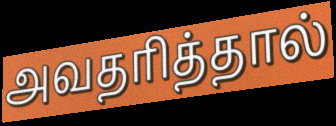
அவதரித்தால்